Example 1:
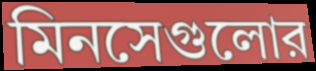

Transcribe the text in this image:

মিনসেগুলোর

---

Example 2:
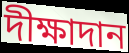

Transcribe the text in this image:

দীক্ষাদান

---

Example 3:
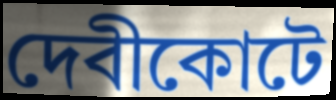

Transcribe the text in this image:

দেবীকোটে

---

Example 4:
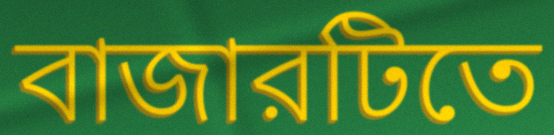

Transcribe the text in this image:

বাজারটিতে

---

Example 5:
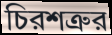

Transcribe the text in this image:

চিরশত্রুর